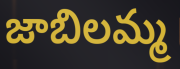
జాబిలమ్మ